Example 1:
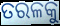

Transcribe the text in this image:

ତରଳକୁ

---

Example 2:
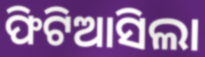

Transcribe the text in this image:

ଫିଟିଆସିଲା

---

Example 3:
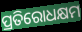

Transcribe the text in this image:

ପ୍ରତିରୋଧକ୍ଷମ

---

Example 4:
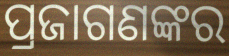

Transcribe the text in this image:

ପ୍ରଜାଗଣଙ୍କର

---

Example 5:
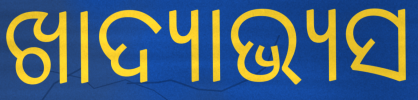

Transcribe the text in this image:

ଖାଦ୍ୟାଭ୍ୟସ